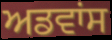
ਅਡਵਾਂਸ